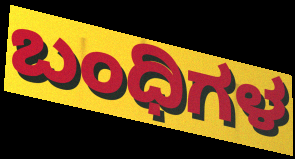
ಬಂಧಿಗಳ